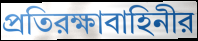
প্রতিরক্ষাবাহিনীর